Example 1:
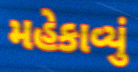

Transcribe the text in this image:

મહેકાવ્યું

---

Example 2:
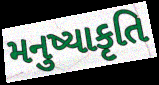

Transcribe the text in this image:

મનુષ્યાકૃતિ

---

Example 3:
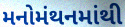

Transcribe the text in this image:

મનોમંથનમાંથી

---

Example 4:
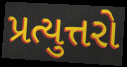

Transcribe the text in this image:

પ્રત્યુત્તરો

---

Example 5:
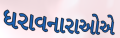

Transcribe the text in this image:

ધરાવનારાઓએ